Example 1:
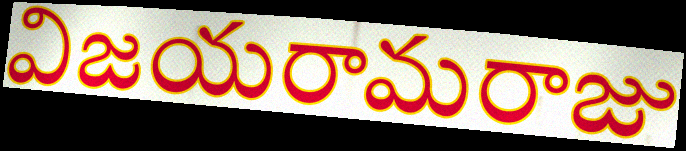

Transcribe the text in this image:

విజయరామరాజు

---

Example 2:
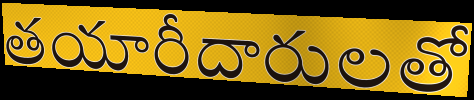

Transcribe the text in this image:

తయారీదారులతో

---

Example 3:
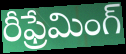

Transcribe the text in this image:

రీఫ్రేమింగ్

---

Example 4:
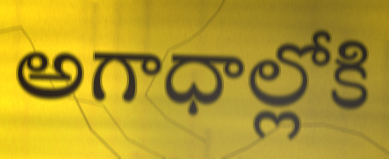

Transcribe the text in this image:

అగాధాల్లోకి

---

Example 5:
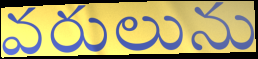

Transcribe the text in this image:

వరులును